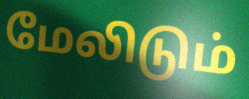
மேலிடும்